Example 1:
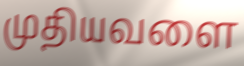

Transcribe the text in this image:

முதியவளை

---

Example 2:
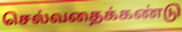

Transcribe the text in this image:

செல்வதைக்கண்டு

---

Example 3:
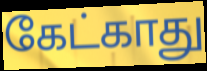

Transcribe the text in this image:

கேட்காது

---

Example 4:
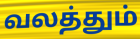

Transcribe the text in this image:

வலத்தும்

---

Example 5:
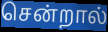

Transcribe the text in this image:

சென்றால்